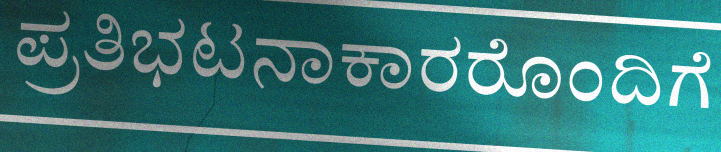
ಪ್ರತಿಭಟನಾಕಾರರೊಂದಿಗೆ